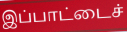
இப்பாட்டைச்